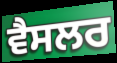
ਵੈਸਲਰ